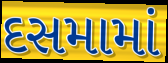
દસમામાં